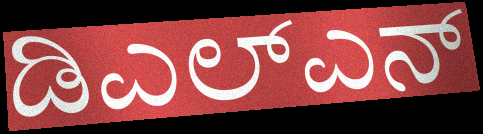
ಡಿಎಲ್ಎನ್